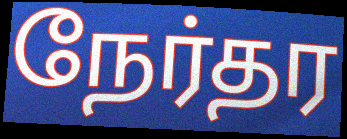
நேர்தர